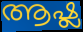
ആഷ്ല